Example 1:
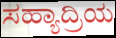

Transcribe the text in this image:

ಸಹ್ಯಾದ್ರಿಯ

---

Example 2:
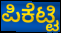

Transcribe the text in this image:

ಪಿಕೆಟ್ಟಿ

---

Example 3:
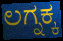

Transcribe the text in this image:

ಲಗ್ನಕ್ಕ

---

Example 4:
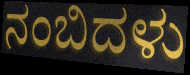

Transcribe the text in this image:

ನಂಬಿದಳು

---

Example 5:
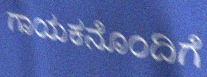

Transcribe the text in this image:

ಗಾಯಕನೊಂದಿಗೆ